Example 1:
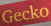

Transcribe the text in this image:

Gecko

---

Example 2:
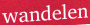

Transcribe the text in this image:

wandelen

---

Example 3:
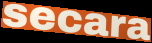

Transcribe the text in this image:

secara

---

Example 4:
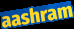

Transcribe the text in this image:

aashram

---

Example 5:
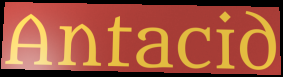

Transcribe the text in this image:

Antacid